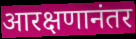
आरक्षणानंतर